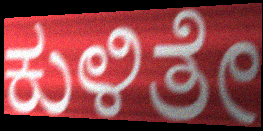
ಕುಳಿತೇ